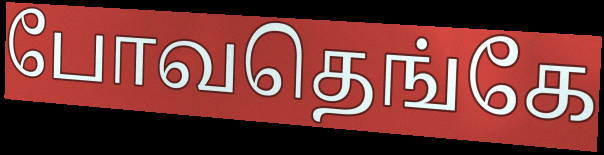
போவதெங்கே